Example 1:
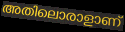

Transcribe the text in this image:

അതിലൊരാളാണ്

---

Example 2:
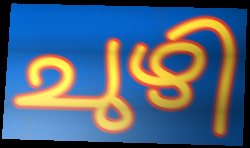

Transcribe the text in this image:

ചുഴി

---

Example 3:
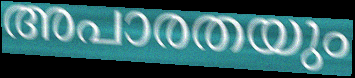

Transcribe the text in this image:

അപാരതയും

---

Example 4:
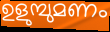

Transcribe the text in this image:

ഉളുമ്പുമണം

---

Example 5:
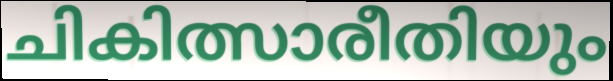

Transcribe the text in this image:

ചികിത്സാരീതിയും